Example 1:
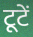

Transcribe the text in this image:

टूटें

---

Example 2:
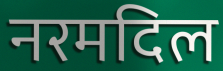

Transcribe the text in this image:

नरमदिल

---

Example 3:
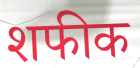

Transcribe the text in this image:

शफीक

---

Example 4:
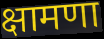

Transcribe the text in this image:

क्षामणा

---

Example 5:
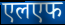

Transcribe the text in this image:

एलएफ